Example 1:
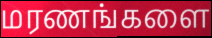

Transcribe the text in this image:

மரணங்களை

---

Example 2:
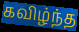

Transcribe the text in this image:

கவிழ்ந்த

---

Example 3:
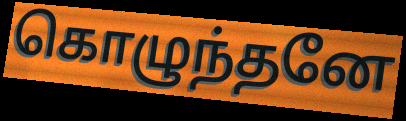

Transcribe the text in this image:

கொழுந்தனே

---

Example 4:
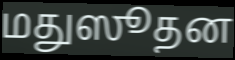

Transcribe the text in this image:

மதுஸூதன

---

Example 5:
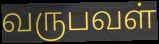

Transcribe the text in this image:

வருபவள்